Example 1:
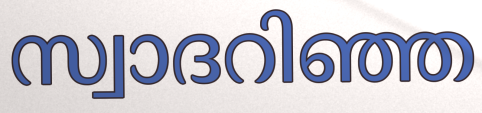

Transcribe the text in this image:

സ്വാദറിഞ്ഞ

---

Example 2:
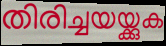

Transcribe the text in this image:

തിരിച്ചയയ്ക്കുക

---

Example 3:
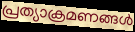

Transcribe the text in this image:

പ്രത്യാക്രമണങ്ങൾ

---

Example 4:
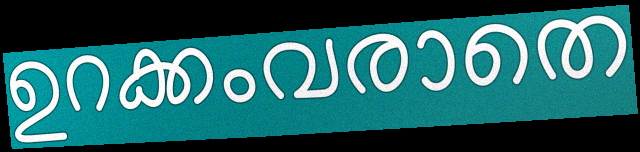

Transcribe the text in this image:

ഉറക്കംവരാതെ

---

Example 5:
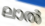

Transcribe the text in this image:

ലാൽ